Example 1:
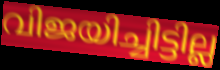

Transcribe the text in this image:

വിജയിച്ചിട്ടില്ല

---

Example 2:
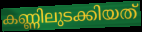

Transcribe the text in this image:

കണ്ണിലുടക്കിയത്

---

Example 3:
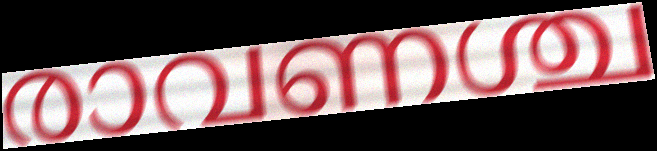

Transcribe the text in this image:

രാവണശ്ച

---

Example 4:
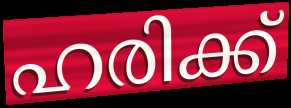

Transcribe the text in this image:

ഹരിക്ക്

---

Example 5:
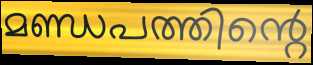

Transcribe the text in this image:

മണ്ഡപത്തിന്റെ